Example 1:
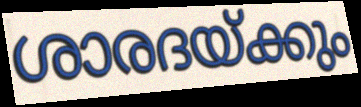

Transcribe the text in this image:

ശാരദയ്ക്കും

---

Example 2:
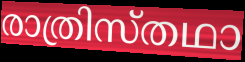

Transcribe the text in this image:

രാത്രിസ്തഥാ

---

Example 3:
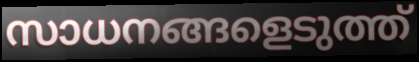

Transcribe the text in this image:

സാധനങ്ങളെടുത്ത്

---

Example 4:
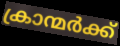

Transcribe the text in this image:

ക്രാന്മർക്ക്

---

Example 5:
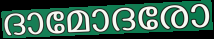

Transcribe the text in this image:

ദാമോദരോ